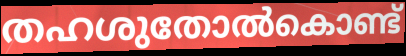
തഹശുതോൽകൊണ്ട്